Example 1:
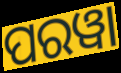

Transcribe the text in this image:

ପରୱା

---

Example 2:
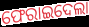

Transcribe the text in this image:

ଫେରାଇଦେଲା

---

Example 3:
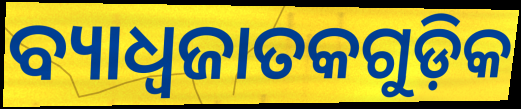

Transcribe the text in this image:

ବ୍ୟାଧ୍ଵଜାତକଗୁଡ଼ିକ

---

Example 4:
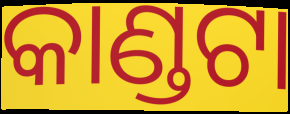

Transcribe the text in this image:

କାଣ୍ଡଟା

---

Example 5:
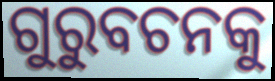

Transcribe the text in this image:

ଗୁରୁବଚନକୁ